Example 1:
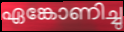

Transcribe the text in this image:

ഏങ്കോണിച്ചു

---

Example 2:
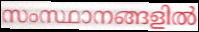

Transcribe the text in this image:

സംസ്ഥാനങ്ങളിൽ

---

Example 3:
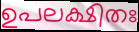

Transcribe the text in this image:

ഉപലക്ഷിതഃ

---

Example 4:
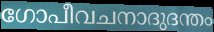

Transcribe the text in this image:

ഗോപീവചനാദുദന്തം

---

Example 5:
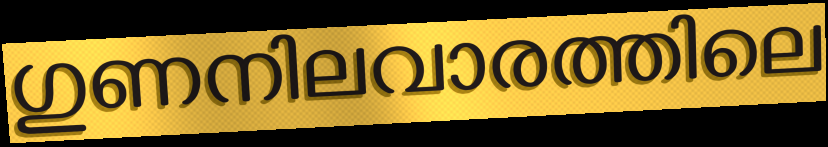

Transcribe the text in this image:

ഗുണനിലവാരത്തിലെ